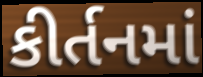
કીર્તનમાં